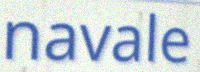
navale